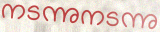
നടന്നുനടന്നു